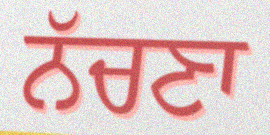
ਨੱਚਣਾ